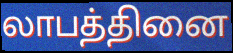
லாபத்தினை